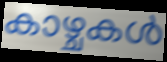
കാഴ്ചകൾ